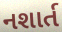
નશાર્ત